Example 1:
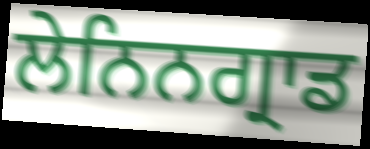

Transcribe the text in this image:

ਲੇਨਿਨਗ੍ਰਾਡ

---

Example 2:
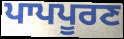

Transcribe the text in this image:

ਪਾਪਪੂਰਣ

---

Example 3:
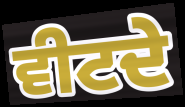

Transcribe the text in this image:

ਵੀਟਦੇ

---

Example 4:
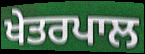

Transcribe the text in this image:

ਖੇਤਰਪਾਲ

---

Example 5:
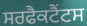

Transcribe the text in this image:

ਸਰਫੈਕਟੈਂਟਸ